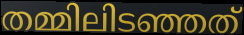
തമ്മിലിടഞ്ഞത്